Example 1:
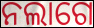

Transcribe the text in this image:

ନଲାଗେ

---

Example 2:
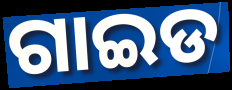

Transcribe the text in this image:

ଗାଇଡ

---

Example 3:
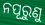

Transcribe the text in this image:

ନପୂରୁଣୁ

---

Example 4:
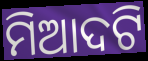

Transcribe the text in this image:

ମିଆଦଟି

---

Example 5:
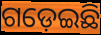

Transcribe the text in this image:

ଗଡ଼େଇଛି